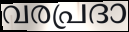
വരപ്രദാ